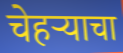
चेहर्‍याचा